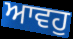
ਆਵਹੁ